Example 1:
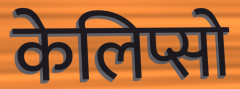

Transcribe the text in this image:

केलिप्सो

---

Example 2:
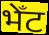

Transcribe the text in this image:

भेँट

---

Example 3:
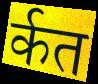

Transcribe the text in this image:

र्कत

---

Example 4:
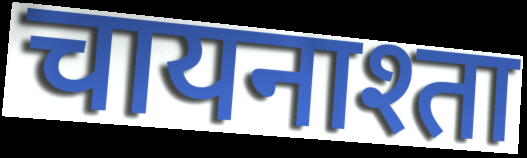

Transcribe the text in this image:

चायनाश्ता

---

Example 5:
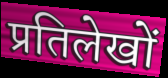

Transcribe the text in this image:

प्रतिलेखों